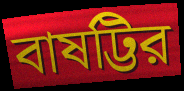
বাষট্টির